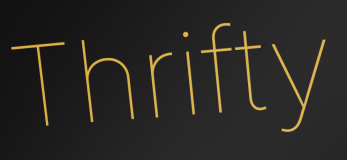
Thrifty